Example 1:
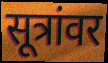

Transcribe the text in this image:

सूत्रांवर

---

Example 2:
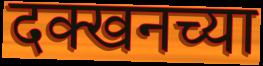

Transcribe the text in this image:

दक्खनच्या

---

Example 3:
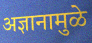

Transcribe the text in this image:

अज्ञानामुळे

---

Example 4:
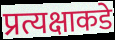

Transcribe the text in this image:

प्रत्यक्षाकडे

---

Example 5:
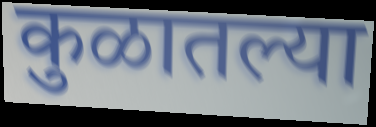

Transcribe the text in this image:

कुळातल्या